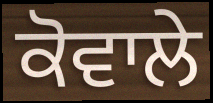
ਕੋਵਾਲੇ